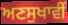
ਅਣਸੁਖਾਵੀਂ